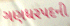
ગણધરપદની